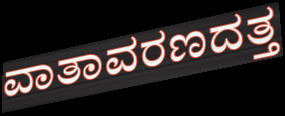
ವಾತಾವರಣದತ್ತ